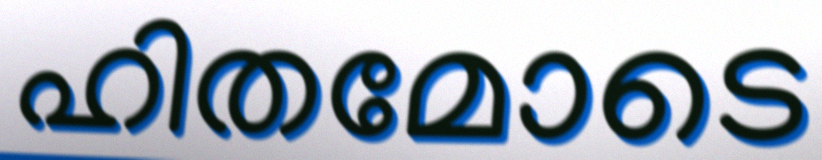
ഹിതമോടെ